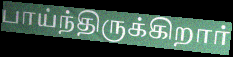
பாய்ந்திருக்கிறார்